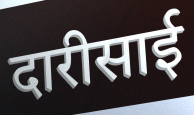
दारीसाई